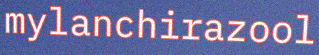
mylanchirazool